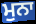
ਮੁਨਾ